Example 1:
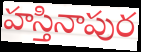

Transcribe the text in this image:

హస్తినాపుర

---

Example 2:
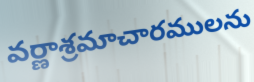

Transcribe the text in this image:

వర్ణాశ్రమాచారములను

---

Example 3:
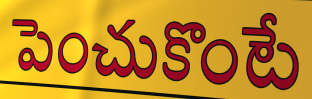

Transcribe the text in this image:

పెంచుకొంటే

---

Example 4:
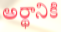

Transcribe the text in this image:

అర్థానికి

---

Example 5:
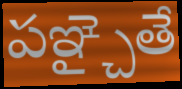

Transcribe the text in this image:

పఞ్చైతే